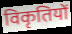
विकृतियों